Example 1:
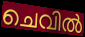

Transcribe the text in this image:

ചെവിൽ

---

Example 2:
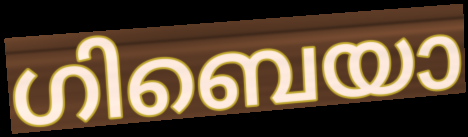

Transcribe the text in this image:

ഗിബെയാ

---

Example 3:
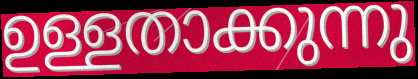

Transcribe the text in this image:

ഉള്ളതാക്കുന്നു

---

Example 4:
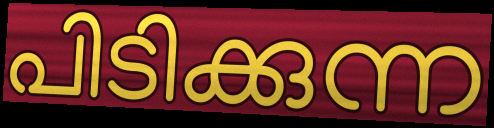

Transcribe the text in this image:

പിടിക്കുന്ന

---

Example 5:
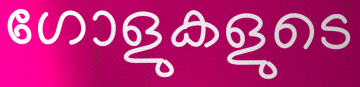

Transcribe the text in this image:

ഗോളുകളുടെ